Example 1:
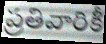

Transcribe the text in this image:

ప్రతివారికీ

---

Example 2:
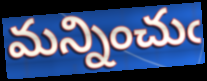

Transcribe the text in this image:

మన్నించుఁ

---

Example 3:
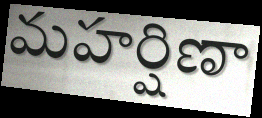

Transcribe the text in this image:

మహర్షిణా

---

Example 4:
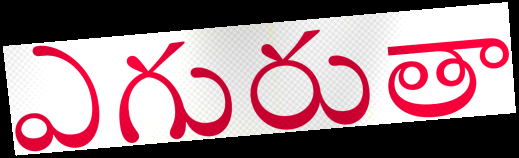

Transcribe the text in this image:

ఎగురుతా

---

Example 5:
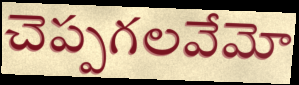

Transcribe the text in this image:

చెప్పగలవేమో